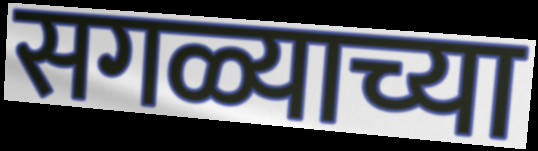
सगळ्याच्या